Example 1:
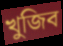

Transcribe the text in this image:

খুজিব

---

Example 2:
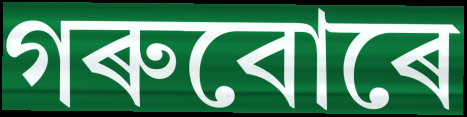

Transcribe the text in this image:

গৰুবোৰে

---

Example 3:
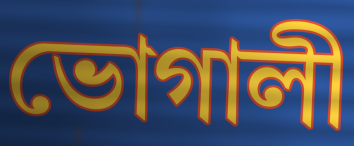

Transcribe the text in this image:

ভোগালী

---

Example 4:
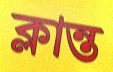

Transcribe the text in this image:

ক্লান্ত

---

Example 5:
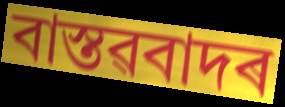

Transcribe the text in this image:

বাস্তৱবাদৰ